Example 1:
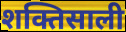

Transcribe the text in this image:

शक्तिसाली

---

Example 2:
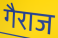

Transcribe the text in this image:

गैराज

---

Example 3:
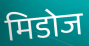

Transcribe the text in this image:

मिडोज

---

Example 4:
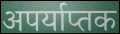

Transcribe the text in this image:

अपर्याप्तक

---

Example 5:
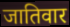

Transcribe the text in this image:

जातिवार